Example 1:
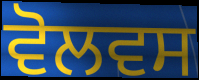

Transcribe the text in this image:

ਵੋਲਵਸ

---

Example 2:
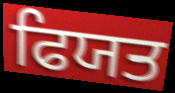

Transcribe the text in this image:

ਫਿਯਤ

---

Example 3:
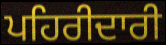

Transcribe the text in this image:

ਪਹਿਰੀਦਾਰੀ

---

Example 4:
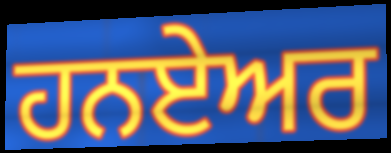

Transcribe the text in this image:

ਹਨਏਅਰ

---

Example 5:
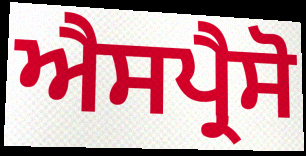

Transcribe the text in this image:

ਐਸਪ੍ਰੈਸੋ